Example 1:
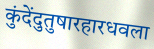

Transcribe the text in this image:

कुंदेंदुतुषारहारधवला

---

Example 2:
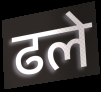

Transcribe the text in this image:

ढले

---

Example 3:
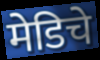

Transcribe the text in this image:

मेडिचे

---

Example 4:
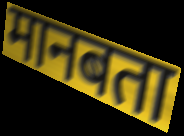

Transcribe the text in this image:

मानबता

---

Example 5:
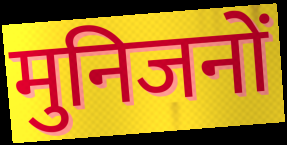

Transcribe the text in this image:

मुनिजनों